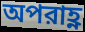
অপরাহ্ণ